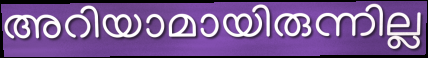
അറിയാമായിരുന്നില്ല